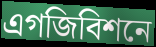
এগজিবিশনে